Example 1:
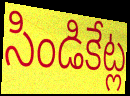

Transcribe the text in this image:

సిండికేట్ల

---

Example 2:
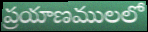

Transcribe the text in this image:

ప్రయాణములలో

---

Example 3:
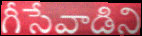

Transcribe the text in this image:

గీసేవాడిని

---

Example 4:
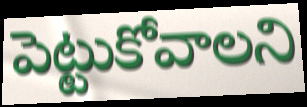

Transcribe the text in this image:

పెట్టుకోవాలని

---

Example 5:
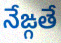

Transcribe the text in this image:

నేఙ్గతే